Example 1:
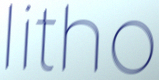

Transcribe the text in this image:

litho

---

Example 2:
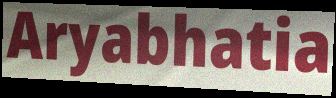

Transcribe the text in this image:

Aryabhatia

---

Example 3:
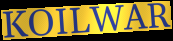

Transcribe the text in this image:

KOILWAR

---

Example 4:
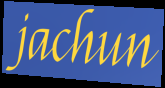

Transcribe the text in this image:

jachun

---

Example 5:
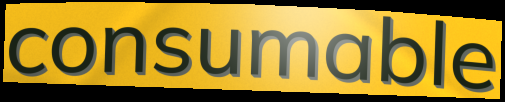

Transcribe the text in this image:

consumable